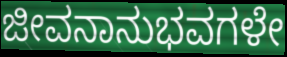
ಜೀವನಾನುಭವಗಳೇ